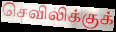
செவிலிக்குக்